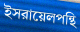
ইসরায়েলপন্থি